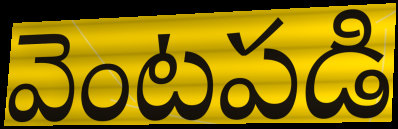
వెంటపడి